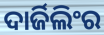
ଦାର୍ଜିଲିଂର